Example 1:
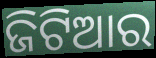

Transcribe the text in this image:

ଜିଟିଆର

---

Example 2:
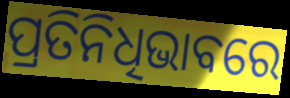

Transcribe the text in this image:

ପ୍ରତିନିଧିଭାବରେ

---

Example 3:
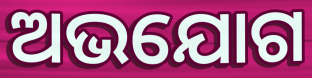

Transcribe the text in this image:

ଅଭଯୋଗ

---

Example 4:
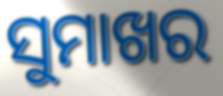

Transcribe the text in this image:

ସୁମାଖର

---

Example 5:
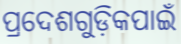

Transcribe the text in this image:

ପ୍ରଦେଶଗୁଡ଼ିକପାଇଁ